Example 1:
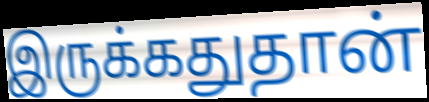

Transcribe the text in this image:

இருக்கதுதான்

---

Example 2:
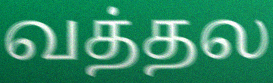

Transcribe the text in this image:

வத்தல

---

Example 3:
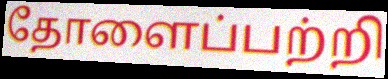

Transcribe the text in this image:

தோளைப்பற்றி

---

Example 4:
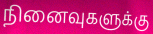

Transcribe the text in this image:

நினைவுகளுக்கு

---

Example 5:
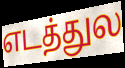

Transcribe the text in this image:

எடத்துல